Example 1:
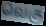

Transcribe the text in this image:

வெகு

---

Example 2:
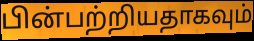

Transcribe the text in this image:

பின்பற்றியதாகவும்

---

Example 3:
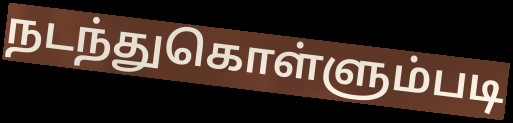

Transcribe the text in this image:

நடந்துகொள்ளும்படி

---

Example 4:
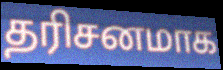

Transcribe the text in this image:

தரிசனமாக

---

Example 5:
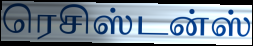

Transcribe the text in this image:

ரெசிஸ்டன்ஸ்